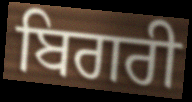
ਬਿਗਰੀ